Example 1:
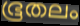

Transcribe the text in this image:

ഭൂതലം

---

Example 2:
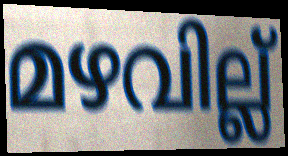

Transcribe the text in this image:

മഴവില്ല്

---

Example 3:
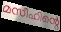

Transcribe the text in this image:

മസീഹിന്റെ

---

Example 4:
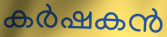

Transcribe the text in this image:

കർഷകൻ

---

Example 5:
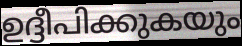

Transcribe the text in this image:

ഉദ്ദീപിക്കുകയും